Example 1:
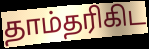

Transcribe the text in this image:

தாம்தரிகிட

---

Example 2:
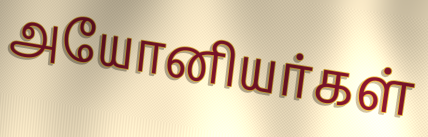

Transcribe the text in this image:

அயோனியர்கள்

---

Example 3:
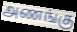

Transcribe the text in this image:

அணங்கு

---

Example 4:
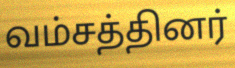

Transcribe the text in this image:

வம்சத்தினர்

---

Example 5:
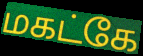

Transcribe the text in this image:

மகட்கே